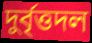
দুর্বৃত্তদল